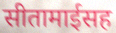
सीतामाईसह